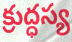
క్రుద్ధస్య